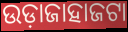
ଉଡ଼ାଜାହାଜଟା